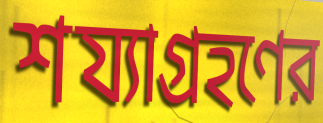
শয্যাগ্রহণের